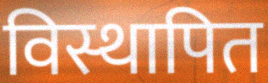
विस्थापित